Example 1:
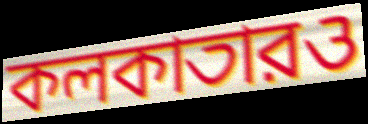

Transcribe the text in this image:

কলকাতারও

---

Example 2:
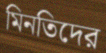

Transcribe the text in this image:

মিনতিদের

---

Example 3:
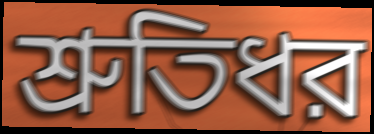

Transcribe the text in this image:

শ্রুতিধর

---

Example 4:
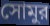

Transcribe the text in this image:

সোমুর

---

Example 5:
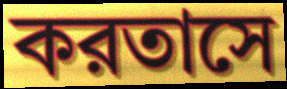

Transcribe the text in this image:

করতাসে